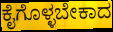
ಕೈಗೊಳ್ಳಬೇಕಾದ